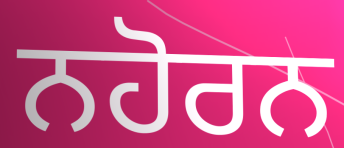
ਨਹੋਰਨ